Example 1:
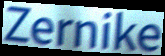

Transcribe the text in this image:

Zernike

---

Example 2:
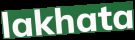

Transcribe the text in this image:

lakhata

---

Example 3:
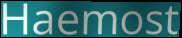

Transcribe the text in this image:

Haemost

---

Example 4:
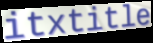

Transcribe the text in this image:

itxtitle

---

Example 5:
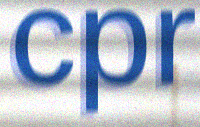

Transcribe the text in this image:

cpr